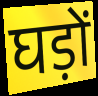
घड़ों